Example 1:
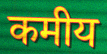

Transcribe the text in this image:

कमीय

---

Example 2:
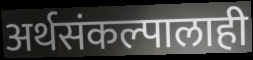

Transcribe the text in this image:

अर्थसंकल्पालाही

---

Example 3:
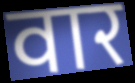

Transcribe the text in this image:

वार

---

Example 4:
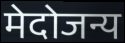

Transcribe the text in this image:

मेदोजन्य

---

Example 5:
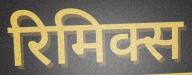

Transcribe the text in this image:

रिमिक्स